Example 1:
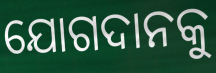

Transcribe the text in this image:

ଯୋଗଦାନକୁ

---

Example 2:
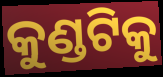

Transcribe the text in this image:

କୁଣ୍ଡଟିକୁ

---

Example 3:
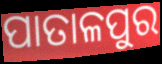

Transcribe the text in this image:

ପାତାଳପୁର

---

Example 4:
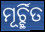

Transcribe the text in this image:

ମୂର୍ଚ୍ଛିତ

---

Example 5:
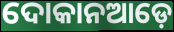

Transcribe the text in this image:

ଦୋକାନଆଡ଼େ